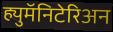
ह्युमॅनिटेरिअन